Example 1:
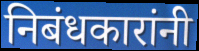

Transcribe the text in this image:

निबंधकारांनी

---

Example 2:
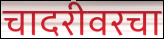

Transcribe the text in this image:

चादरीवरचा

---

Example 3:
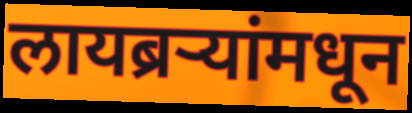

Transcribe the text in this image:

लायब्रऱ्यांमधून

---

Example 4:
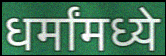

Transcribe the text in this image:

धर्मांमध्ये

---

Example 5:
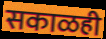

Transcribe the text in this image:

सकाळही